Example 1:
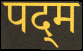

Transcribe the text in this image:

पद्‌म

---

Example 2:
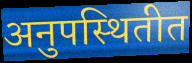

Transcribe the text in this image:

अनुपस्थितीत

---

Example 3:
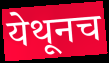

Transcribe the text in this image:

येथूनच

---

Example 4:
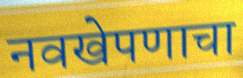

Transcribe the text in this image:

नवखेपणाचा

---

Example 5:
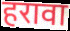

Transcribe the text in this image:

हरावा